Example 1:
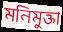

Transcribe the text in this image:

মনিমুক্তা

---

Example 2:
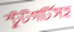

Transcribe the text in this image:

স্টুটগার্টসহ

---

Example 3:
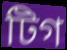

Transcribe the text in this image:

টিগ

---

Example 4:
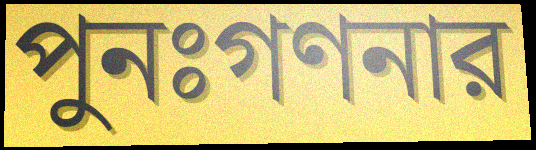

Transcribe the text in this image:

পুনঃগণনার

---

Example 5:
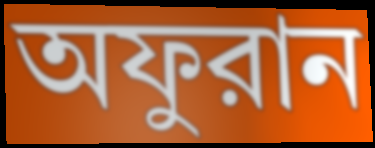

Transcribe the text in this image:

অফুরান